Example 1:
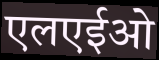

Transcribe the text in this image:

एलएईओ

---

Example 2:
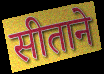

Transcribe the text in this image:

सीताने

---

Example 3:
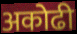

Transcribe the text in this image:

अकोढी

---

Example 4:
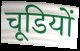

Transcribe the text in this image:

चूडियों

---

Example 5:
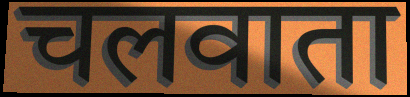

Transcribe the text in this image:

चलवाता